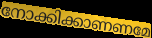
നോക്കിക്കാണണമേ